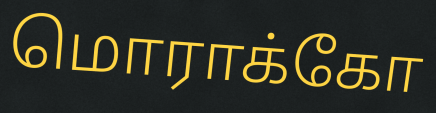
மொராக்கோ